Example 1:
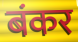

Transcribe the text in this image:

बंकर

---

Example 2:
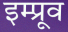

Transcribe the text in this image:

इम्प्रूव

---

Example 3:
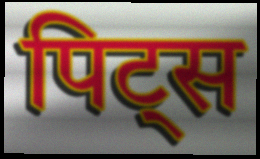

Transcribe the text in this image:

पिट्स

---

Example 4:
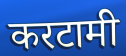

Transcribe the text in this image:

करटामी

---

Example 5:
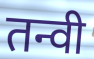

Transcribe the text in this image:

तन्वी